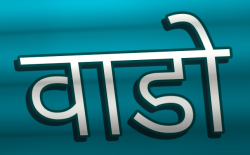
वाडो